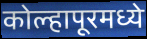
कोल्हापूरमध्ये